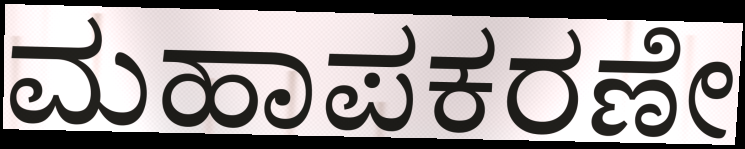
ಮಹಾಪಕರಣೇ